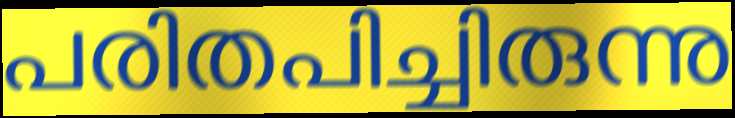
പരിതപിച്ചിരുന്നു